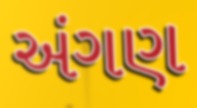
અંગણ